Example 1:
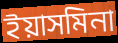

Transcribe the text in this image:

ইয়াসমিনা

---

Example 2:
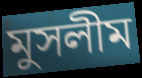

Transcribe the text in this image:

মুসলীম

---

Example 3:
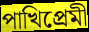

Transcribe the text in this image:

পাখিপ্রেমী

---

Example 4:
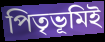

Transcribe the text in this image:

পিতৃভূমিই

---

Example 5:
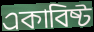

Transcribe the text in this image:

একাবিষ্ট